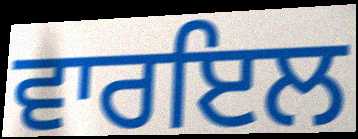
ਵਾਰਇਲ